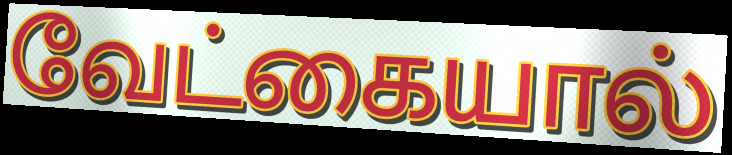
வேட்கையால்